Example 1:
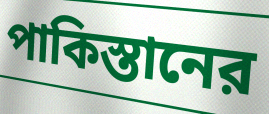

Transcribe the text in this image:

পাকিস্তানের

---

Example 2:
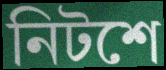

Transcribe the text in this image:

নিটশে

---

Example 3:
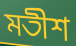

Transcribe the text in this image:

মতীশ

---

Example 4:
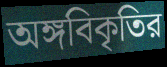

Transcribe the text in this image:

অঙ্গবিকৃতির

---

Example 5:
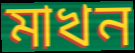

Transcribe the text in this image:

মাখন